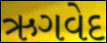
ઋગવેદ